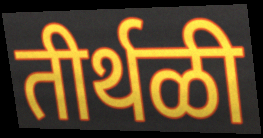
तीर्थळी